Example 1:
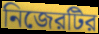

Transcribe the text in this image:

নিজেরটির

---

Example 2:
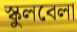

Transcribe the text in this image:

স্কুলবেলা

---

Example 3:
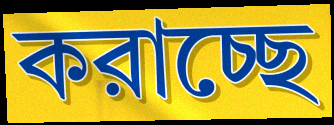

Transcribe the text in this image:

করাচ্ছে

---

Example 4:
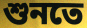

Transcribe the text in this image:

শুনতে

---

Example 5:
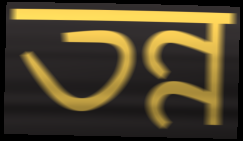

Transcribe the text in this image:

তন্ন